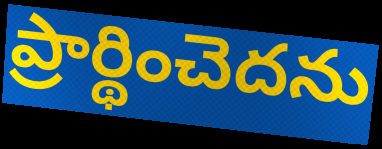
ప్రార్థించెదను